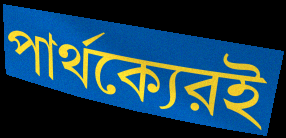
পার্থক্যেরই